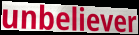
unbeliever